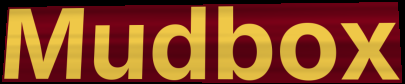
Mudbox